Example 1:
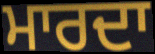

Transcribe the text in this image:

ਮਾਰਦਾ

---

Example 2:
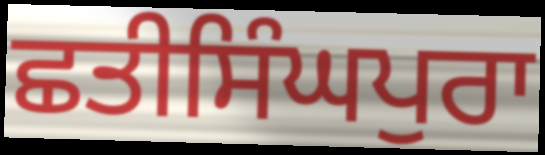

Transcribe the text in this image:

ਛਤੀਸਿੰਘਪੁਰਾ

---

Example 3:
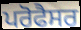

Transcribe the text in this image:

ਪਰੋਫੈਸਰ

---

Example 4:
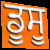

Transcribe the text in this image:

ਡੂਸੂ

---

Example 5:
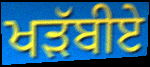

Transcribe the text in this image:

ਖੜੱਬੀਏ